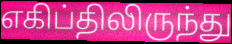
எகிப்திலிருந்து